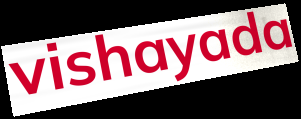
vishayada